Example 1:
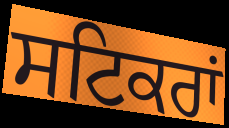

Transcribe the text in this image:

ਸਟਿਕਰਾਂ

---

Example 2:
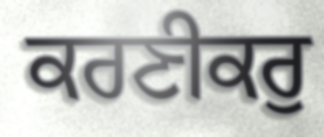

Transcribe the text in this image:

ਕਰਣੀਕਰੁ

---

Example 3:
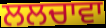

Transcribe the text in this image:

ਲਲਚਾਵਾ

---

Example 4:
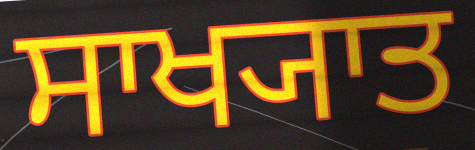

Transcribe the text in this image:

ਸਾਖ੍ਯਾਤ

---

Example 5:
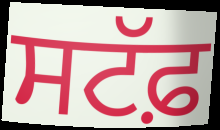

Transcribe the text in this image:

ਸਟੱਫ਼